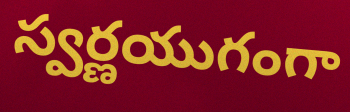
స్వర్ణయుగంగా